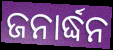
ଜନାର୍ଦ୍ଧନ